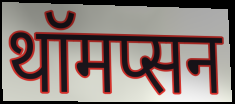
थॉमप्सन